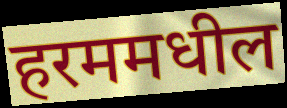
हरममधील